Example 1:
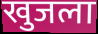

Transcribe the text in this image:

खुजला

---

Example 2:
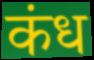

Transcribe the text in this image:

कंध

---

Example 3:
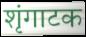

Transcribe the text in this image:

शृंगाटक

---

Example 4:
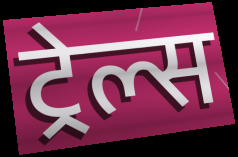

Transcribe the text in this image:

ट्रेल्स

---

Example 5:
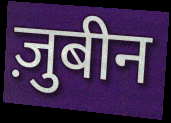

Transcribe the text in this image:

ज़ुबीन